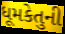
ધૂમકેતુની